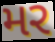
મર